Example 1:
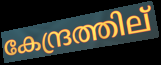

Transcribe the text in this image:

കേന്ദ്രത്തില്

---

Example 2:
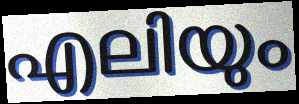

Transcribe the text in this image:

എലിയും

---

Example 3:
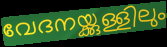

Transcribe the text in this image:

വേദനയ്ക്കുള്ളിലും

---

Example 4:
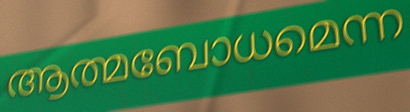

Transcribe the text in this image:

ആത്മബോധമെന്ന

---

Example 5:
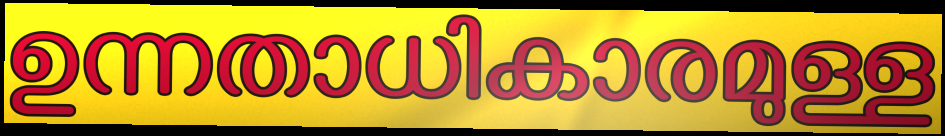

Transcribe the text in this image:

ഉന്നതാധികാരമുള്ള